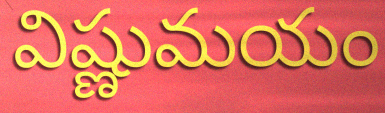
విష్ణుమయం